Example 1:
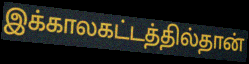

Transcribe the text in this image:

இக்காலகட்டத்தில்தான்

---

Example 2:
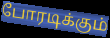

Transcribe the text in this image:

போரடிக்கும்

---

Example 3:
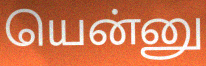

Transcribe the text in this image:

யென்னு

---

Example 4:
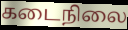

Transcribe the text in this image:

கடைநிலை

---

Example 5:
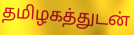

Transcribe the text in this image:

தமிழகத்துடன்